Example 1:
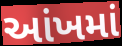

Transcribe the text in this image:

આંખમાં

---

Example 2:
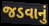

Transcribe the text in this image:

જડવાનું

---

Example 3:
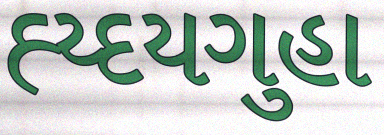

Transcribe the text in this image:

હ્ય્દયગુહા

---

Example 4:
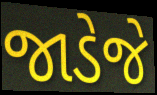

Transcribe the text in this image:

જાડેજે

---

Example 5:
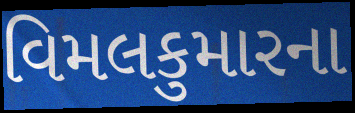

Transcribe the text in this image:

વિમલકુમારના